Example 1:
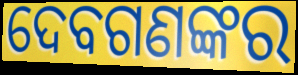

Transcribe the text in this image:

ଦେବଗଣଙ୍କର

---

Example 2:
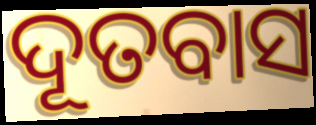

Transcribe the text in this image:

ଦୂତବାସ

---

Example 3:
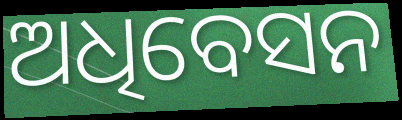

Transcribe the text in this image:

ଅଧିବେସନ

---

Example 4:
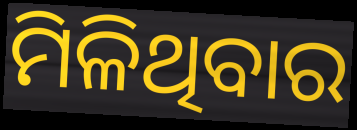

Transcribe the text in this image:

ମିଳିଥିବାର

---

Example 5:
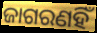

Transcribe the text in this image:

ଜାଗରଣହିଁ